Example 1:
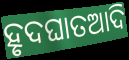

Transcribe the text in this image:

ହୃଦଘାତଆଦି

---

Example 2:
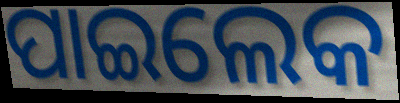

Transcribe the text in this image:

ପାଇଲେକ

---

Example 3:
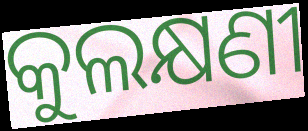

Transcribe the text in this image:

କୁଲକ୍ଷଣୀ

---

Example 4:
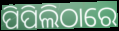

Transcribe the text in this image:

ପିପିଲିଠାରେ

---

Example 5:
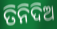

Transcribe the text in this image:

ତିନିଦିଅ